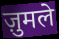
ज़ुमले